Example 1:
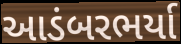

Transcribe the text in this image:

આડંબરભર્યા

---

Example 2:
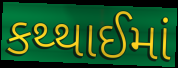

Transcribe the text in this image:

કથ્થાઈમાં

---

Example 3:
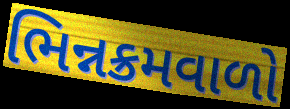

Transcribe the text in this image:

ભિન્નક્રમવાળો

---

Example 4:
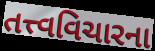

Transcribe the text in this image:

તત્ત્વવિચારના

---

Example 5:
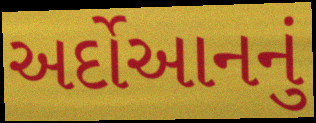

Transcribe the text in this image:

અર્દોઆનનું